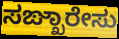
ಸಙ್ಖಾರೇಸು